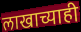
लाखाच्याही